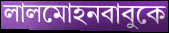
লালমোহনবাবুকে